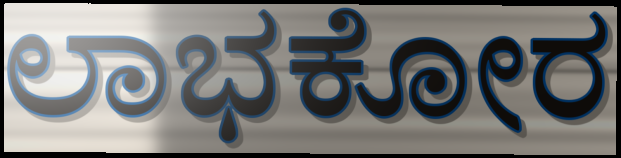
ಲಾಭಕೋರ